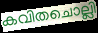
കവിതചൊല്ലി